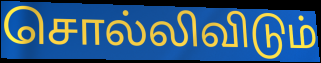
சொல்லிவிடும்